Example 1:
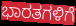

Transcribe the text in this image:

ಭಾರತಗಳಿಗೆ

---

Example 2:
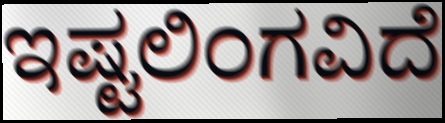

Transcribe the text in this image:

ಇಷ್ಟಲಿಂಗವಿದೆ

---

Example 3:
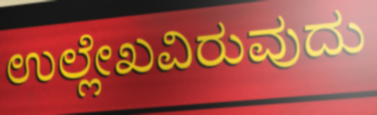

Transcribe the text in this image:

ಉಲ್ಲೇಖವಿರುವುದು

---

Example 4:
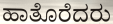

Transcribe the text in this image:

ಹಾತೊರೆದರು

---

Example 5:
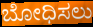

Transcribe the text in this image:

ಬೋಧಿಸಲು